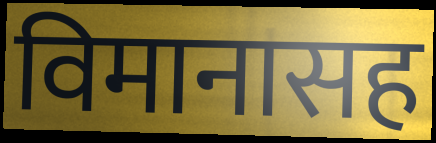
विमानासह